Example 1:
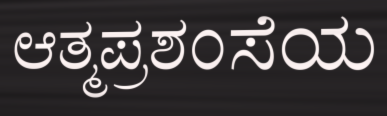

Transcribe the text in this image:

ಆತ್ಮಪ್ರಶಂಸೆಯ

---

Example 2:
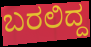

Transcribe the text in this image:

ಬರಲಿದ್ದ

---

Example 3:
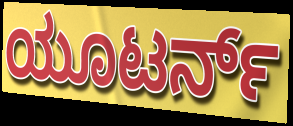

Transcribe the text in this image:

ಯೂಟರ್ನ್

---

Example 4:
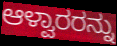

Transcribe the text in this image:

ಆಳ್ವಾರರನ್ನು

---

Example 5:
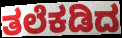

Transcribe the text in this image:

ತಲೆಕಡಿದ